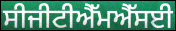
ਸੀਜੀਟੀਐੱਮਐੱਸਈ